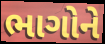
ભાગોને